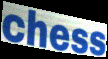
chess